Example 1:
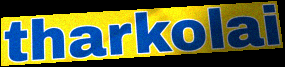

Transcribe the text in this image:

tharkolai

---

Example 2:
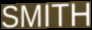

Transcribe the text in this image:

SMITH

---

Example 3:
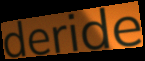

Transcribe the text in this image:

deride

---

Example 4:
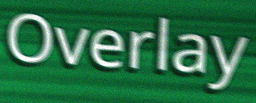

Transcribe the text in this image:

Overlay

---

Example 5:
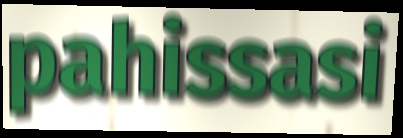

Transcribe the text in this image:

pahissasi